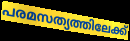
പരമസത്യത്തിലേക്ക്